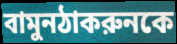
বামুনঠাকরুনকে